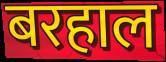
बरहाल